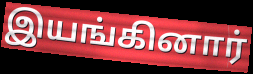
இயங்கினார்